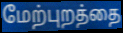
மேற்புறத்தை